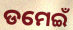
ଡମେଇଁ